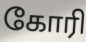
கோரி